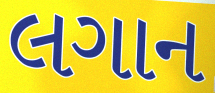
લગાન